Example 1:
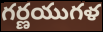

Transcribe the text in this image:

గర్ణయుగళ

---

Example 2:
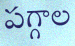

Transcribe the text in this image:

పగ్గాల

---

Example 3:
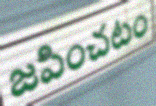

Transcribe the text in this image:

జపించటం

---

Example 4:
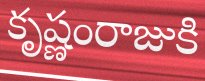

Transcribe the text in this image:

కృష్ణంరాజుకి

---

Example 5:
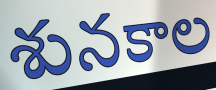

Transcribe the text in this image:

శునకాల